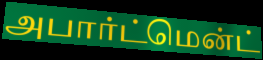
அபார்ட்மென்ட்